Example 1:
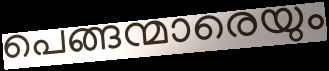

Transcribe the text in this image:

പെങ്ങന്മാരെയും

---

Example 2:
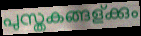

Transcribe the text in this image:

പുസ്തകങ്ങള്ക്കും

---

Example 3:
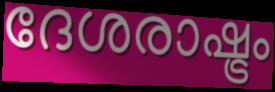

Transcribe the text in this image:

ദേശരാഷ്ട്രം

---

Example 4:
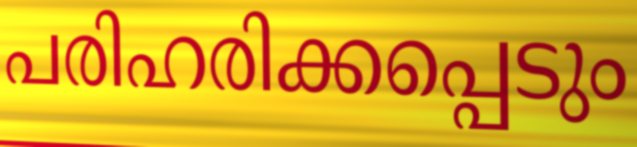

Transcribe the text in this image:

പരിഹരിക്കപ്പെടും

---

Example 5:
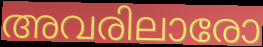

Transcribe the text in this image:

അവരിലാരോ